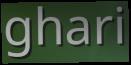
ghari